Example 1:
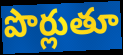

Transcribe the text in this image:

పొర్లుతూ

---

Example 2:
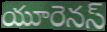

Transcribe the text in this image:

యూరెనస్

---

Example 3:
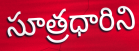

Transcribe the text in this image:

సూత్రధారిని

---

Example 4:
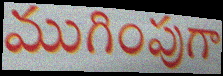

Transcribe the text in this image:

ముగింపుగా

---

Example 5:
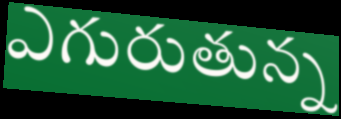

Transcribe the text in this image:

ఎగురుతున్న